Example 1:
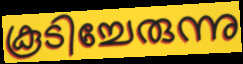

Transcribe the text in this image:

കൂടിച്ചേരുന്നു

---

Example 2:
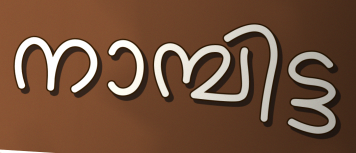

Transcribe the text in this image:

നാമ്പിട്ട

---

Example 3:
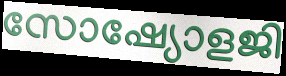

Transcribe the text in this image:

സോഷ്യോളജി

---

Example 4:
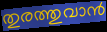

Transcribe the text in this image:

തുരത്തുവാൻ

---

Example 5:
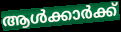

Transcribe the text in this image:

ആൾക്കാർക്ക്